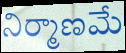
నిర్మాణమే